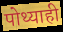
पोथ्याही